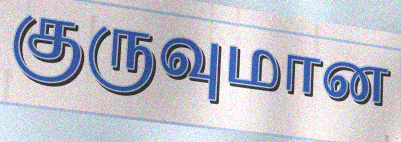
குருவுமான